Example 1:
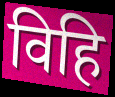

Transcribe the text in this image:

विहि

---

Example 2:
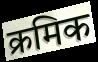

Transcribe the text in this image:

क्रमिक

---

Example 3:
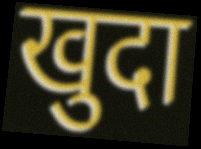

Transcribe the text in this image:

खुदा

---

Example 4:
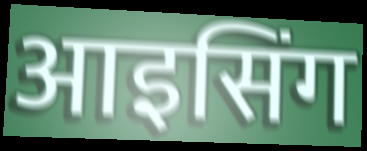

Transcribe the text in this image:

आइसिंग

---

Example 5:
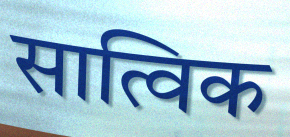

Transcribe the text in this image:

सात्विक